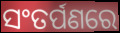
ସଂତର୍ପଣରେ